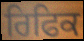
ਰਿਫਿਕ